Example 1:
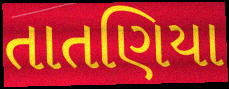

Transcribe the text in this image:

તાતણિયા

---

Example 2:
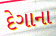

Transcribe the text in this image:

દેગાના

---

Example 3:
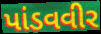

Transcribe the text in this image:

પાંડવવીર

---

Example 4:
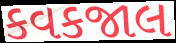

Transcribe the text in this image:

કવકજાલ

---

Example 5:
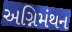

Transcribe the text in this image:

અગ્નિમંથન